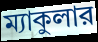
ম্যাকুলার